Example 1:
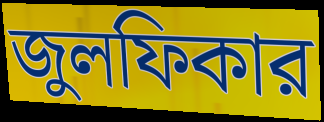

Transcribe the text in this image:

জুলফিকার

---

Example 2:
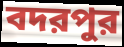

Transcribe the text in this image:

বদরপুর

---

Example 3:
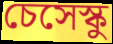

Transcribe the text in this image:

চেসেস্কু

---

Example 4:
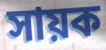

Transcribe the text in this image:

সায়ক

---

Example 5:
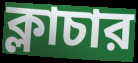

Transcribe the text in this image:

ক্লাচার